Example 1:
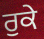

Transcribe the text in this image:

ਰੁਕੇ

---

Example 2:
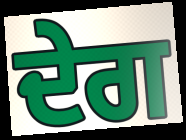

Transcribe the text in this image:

ਦੇਗ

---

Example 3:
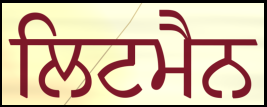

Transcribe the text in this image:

ਲਿਟਮੈਨ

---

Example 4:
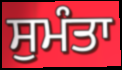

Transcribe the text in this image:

ਸੁਮੰਤਾ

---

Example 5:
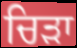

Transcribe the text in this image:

ਚਿੜਾ